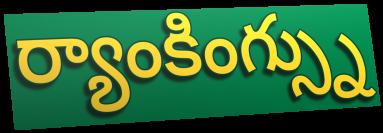
ర్యాంకింగ్స్ను